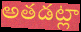
అతడట్లా